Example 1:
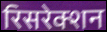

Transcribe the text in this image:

रिसरेक्शन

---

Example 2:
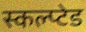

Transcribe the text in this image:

स्कल्प्टेड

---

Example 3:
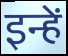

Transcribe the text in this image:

इन्‍हें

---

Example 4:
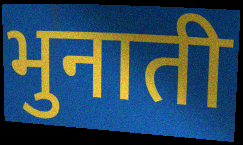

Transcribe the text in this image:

भुनाती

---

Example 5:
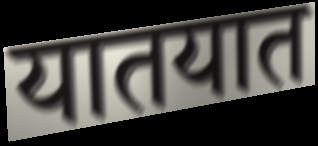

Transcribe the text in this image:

यातयात